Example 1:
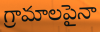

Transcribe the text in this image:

గ్రామాలపైనా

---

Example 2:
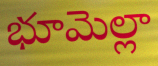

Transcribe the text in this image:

భూమెల్లా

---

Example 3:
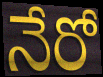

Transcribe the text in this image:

నేరో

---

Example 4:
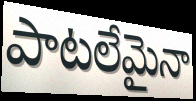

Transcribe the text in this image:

పాటలేమైనా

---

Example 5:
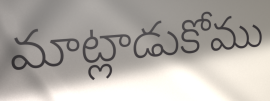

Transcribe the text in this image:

మాట్లాడుకోము